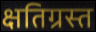
क्षतिग्रस्त